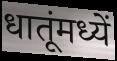
धातूंमध्यें